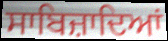
ਸਾਬਿਜ਼ਾਦਿਆਂ